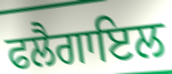
ਫਲੈਗਾਇਲ